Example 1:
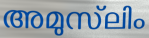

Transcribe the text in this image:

അമുസ്‌ലിം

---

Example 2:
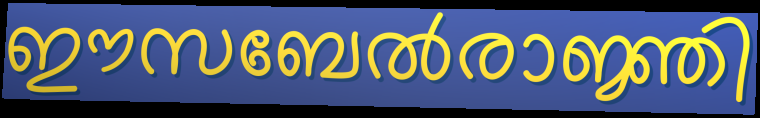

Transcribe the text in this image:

ഈസബേൽരാജ്ഞി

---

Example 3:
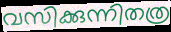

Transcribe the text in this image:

വസിക്കുന്നിതത്ര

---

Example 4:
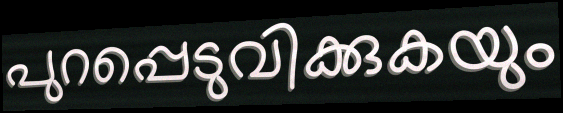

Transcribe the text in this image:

പുറപ്പെടുവിക്കുകയും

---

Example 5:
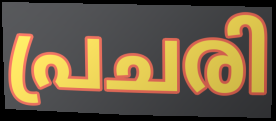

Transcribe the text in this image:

പ്രചരി